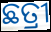
ଛତ୍ରୀ